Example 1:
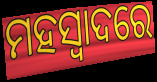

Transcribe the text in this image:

ମହସ୍ୱାଦରେ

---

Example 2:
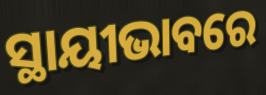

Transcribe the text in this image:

ସ୍ଥାୟୀଭାବରେ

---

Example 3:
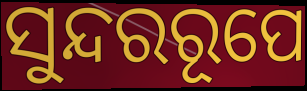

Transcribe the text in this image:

ସୁନ୍ଦରରୂପେ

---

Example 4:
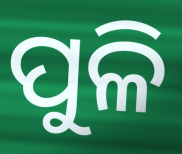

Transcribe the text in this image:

ପୁଳି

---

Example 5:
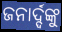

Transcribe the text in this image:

ଜନାର୍ଦ୍ଦଙ୍କୁ